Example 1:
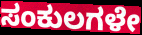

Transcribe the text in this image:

ಸಂಕುಲಗಳೇ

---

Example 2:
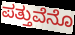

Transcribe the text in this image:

ಪತ್ತುವೆನೊ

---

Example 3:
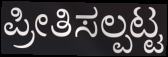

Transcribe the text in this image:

ಪ್ರೀತಿಸಲ್ಪಟ್ಟ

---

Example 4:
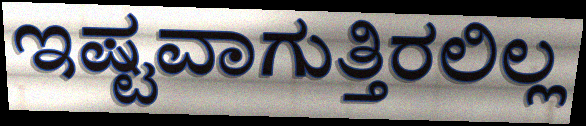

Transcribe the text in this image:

ಇಷ್ಟವಾಗುತ್ತಿರಲಿಲ್ಲ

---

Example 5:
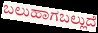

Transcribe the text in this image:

ಬಲುಹಾಗಬಲ್ಲುದೆ